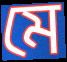
মে